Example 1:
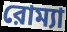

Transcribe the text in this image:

রোম্যা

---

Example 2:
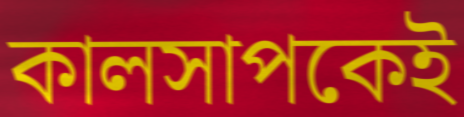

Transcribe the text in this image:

কালসাপকেই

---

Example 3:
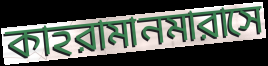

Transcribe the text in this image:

কাহরামানমারাসে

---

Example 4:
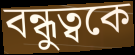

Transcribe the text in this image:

বন্ধুত্বকে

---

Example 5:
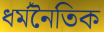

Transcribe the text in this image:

ধর্মনৈতিক